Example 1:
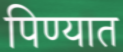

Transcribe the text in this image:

पिण्यात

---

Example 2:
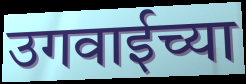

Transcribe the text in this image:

उगवाईच्या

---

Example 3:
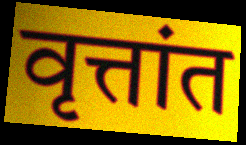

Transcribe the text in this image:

वृत्तांत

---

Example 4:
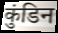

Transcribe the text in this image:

कुंडिन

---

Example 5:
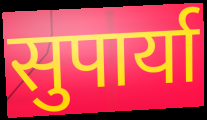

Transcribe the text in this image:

सुपार्या